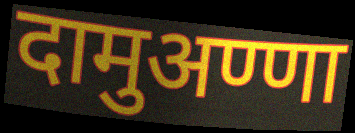
दामुअण्णा